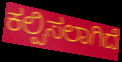
ಕಲ್ಪಿಸಲಾಗಿದೆ